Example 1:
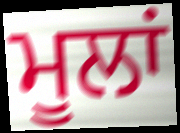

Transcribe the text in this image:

ਮੂਲਾਂ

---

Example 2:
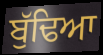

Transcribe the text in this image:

ਬੁੱਢਿਆ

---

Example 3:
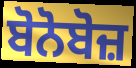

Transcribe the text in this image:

ਬੋਨੋਬੋਜ਼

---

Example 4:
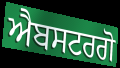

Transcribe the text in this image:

ਐਬਸਟਰਗੋ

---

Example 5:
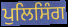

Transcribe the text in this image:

ਪੁਲਿਸਿੰਗ